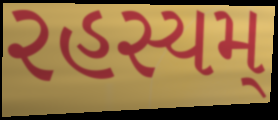
રહસ્યમ્